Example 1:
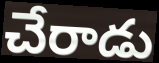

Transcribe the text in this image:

చేరాడు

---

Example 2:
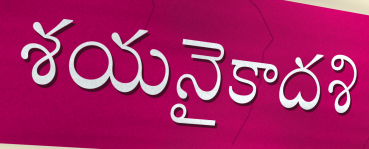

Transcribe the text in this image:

శయనైకాదశి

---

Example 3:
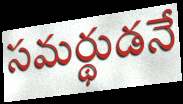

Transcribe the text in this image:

సమర్థుడనే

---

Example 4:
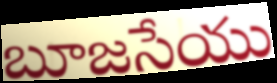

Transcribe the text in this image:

బూజసేయు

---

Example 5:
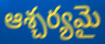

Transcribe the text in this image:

ఆశ్చర్యమై